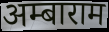
अम्बाराम